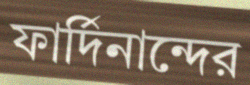
ফার্দিনান্দের